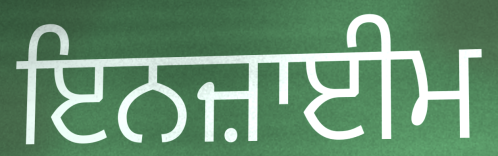
ਇਨਜ਼ਾਈਮ